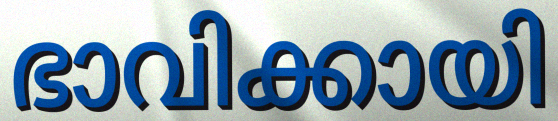
ഭാവിക്കായി